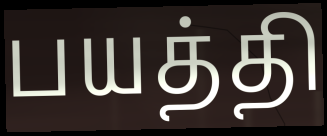
பயத்தி